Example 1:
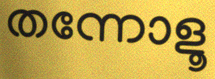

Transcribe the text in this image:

തന്നോളൂ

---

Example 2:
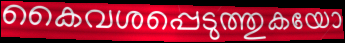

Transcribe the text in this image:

കൈവശപ്പെടുത്തുകയോ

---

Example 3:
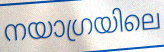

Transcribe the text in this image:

നയാഗ്രയിലെ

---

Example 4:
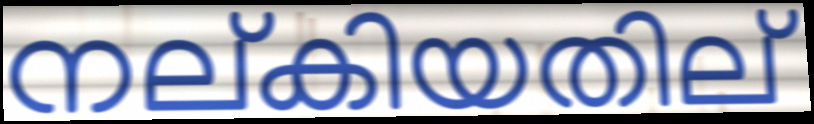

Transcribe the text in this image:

നല്കിയതില്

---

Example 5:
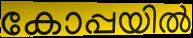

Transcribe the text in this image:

കോപ്പയിൽ